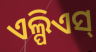
ଏଲ୍ପିଏସ୍